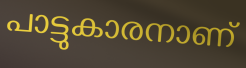
പാട്ടുകാരനാണ്